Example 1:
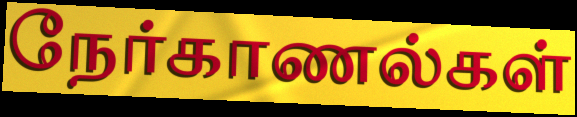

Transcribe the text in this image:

நேர்காணல்கள்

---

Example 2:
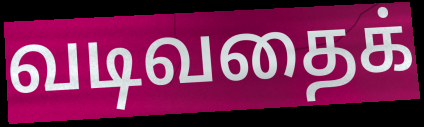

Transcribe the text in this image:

வடிவதைக்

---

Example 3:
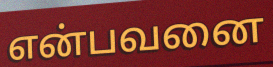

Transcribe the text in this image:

என்பவனை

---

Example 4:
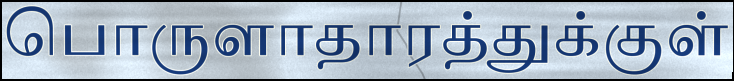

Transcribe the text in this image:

பொருளாதாரத்துக்குள்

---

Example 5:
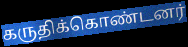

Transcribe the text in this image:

கருதிக்கொண்டனர்